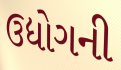
ઉદ્યોગની